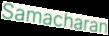
Samacharan